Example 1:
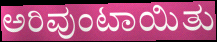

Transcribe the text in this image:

ಅರಿವುಂಟಾಯಿತು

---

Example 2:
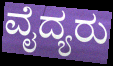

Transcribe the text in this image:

ವೈದ್ಯರು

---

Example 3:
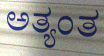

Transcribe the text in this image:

ಅತ್ಯಂತ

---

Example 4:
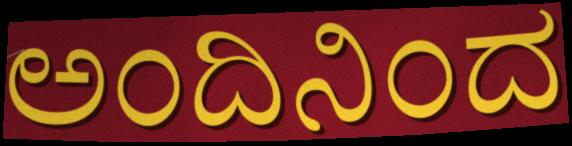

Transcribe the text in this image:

ಅಂದಿನಿಂದ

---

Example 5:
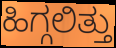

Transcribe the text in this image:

ಹಿಗ್ಗಲಿತ್ತು